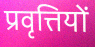
प्रवृत्तियों